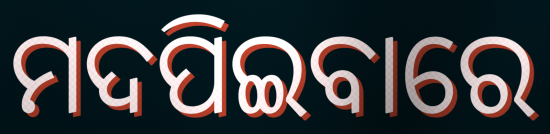
ମଦପିଇବାରେ